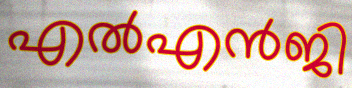
എൽഎൻജി